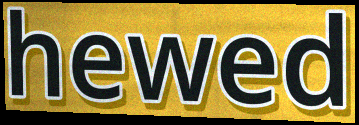
hewed